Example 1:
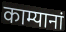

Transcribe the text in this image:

काम्यानां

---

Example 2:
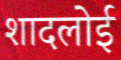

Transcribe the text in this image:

शादलोई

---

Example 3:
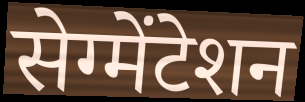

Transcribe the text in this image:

सेग्मेंटेशन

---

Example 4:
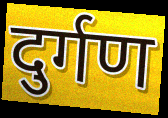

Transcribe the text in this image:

दुर्गण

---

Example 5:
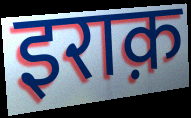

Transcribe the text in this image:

इराक़